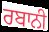
ਰਬਾਨੀ